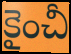
కైంచీ